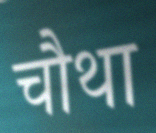
चौथा